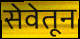
सेवेतून